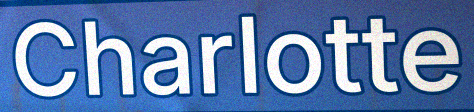
Charlotte